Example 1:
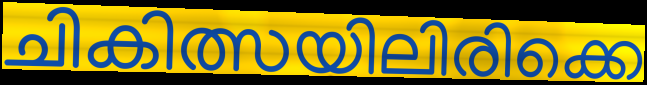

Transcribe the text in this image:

ചികിത്സയിലിരിക്കെ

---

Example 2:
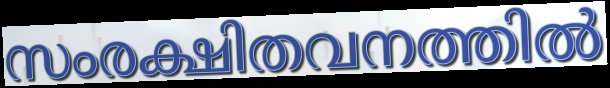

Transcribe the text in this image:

സംരക്ഷിതവനത്തിൽ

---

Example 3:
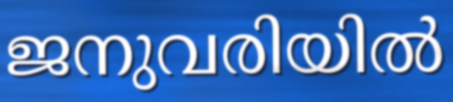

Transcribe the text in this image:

ജനുവരിയിൽ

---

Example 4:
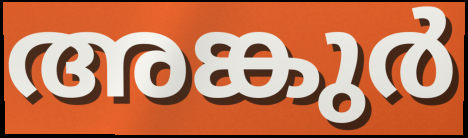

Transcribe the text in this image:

അങ്കുർ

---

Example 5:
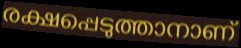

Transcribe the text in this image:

രക്ഷപ്പെടുത്താനാണ്